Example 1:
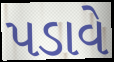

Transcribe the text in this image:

પડાવે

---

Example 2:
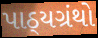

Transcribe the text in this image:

પાઠ્યગ્રંથો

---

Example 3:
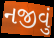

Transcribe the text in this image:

નજીવું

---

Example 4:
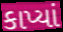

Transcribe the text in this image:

કાપ્યાં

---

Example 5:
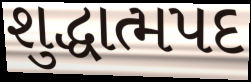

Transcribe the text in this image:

શુદ્ધાત્મપદ